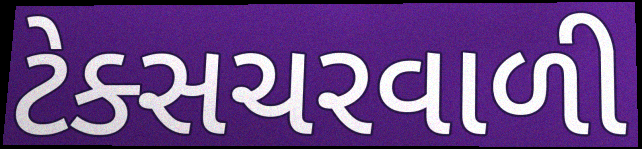
ટેક્સચરવાળી